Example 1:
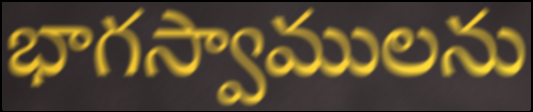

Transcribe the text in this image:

భాగస్వాములను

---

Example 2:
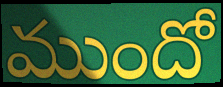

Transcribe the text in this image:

ముందో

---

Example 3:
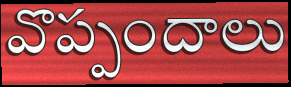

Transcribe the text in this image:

వొప్పందాలు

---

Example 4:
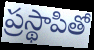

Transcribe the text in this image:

ప్రస్థాపితో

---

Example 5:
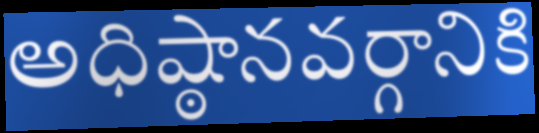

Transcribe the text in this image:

అధిష్ఠానవర్గానికి